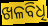
ଖଳବିଧି